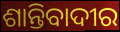
ଶାନ୍ତିବାଦୀର